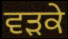
ਵੜਕੇ